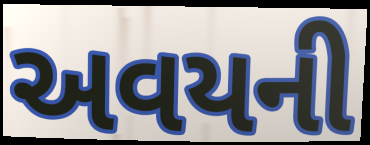
અવયની